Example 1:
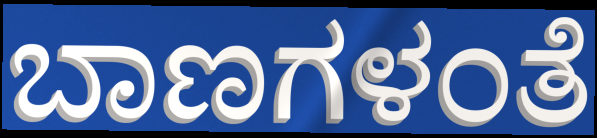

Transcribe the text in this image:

ಬಾಣಗಳಂತೆ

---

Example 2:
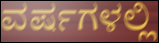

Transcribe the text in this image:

ವರ್ಷಗಳಲ್ಲಿ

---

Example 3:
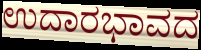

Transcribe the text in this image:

ಉದಾರಭಾವದ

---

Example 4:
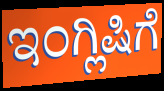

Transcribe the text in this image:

ಇಂಗ್ಲಿಷಿಗೆ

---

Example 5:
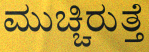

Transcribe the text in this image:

ಮುಚ್ಚಿರುತ್ತೆ